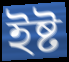
ইষ্ট